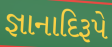
જ્ઞાનાદિરૂપે